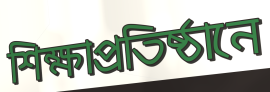
শিক্ষাপ্রতিষ্ঠানে